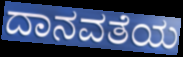
ದಾನವತೆಯ